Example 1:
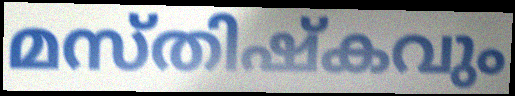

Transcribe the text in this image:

മസ്തിഷ്കവും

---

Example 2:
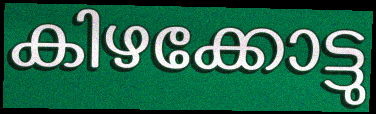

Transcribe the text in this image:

കിഴക്കോട്ടു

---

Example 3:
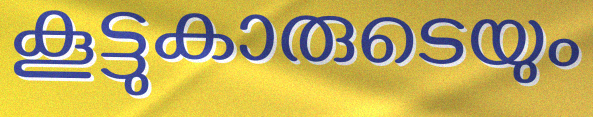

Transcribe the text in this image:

കൂട്ടുകാരുടെയും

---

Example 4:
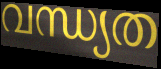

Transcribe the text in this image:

വന്ധ്യത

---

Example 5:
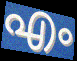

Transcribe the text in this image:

എം